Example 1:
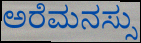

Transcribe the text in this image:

ಅರೆಮನಸ್ಸು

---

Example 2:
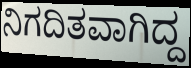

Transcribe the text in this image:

ನಿಗದಿತವಾಗಿದ್ದ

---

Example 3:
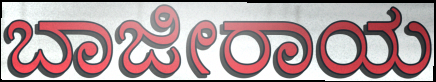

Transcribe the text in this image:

ಬಾಜೀರಾಯ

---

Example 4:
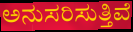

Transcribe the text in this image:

ಅನುಸರಿಸುತ್ತಿವೆ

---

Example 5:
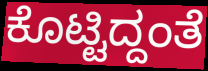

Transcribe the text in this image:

ಕೊಟ್ಟಿದ್ದಂತೆ